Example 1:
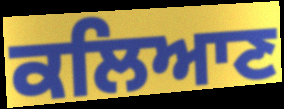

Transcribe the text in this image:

ਕਲਿਆਣ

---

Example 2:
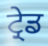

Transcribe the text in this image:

ਟ੍ਰੇਡ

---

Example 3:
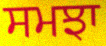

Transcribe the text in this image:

ਸਮਝਾ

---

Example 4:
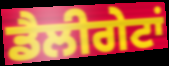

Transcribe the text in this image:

ਡੈਲੀਗੇਟਾਂ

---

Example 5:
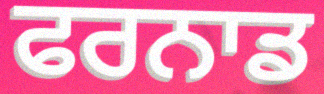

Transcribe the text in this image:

ਫਰਨਾਡ